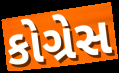
કોગ્રેસ